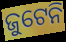
ଜୁଟେନି